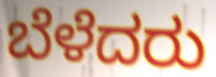
ಬೆಳೆದರು